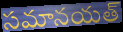
సమానయత్